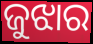
ଜୁଝାର